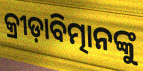
କ୍ରୀଡ଼ାବିତ୍ମାନଙ୍କୁ